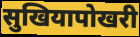
सुखियापोखरी